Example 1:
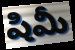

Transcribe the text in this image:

షిమీ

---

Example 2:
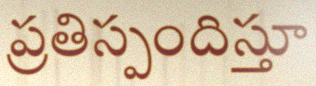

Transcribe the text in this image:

ప్రతిస్పందిస్తూ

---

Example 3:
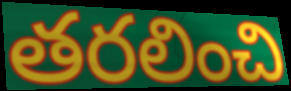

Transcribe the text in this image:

తరలించి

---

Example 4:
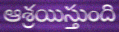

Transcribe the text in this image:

ఆశ్రయిస్తుంది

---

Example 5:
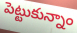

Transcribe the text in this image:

పెట్టుకున్నాం